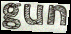
gun